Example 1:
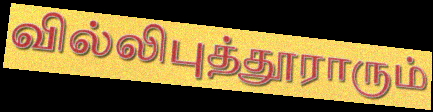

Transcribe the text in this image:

வில்லிபுத்தூராரும்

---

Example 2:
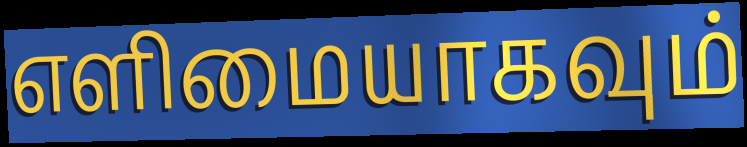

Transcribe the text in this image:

எளிமையாகவும்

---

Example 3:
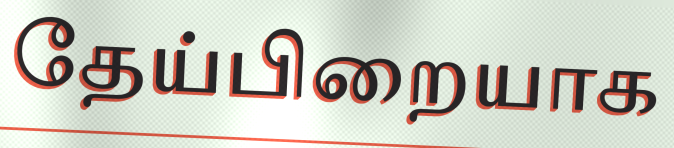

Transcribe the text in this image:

தேய்பிறையாக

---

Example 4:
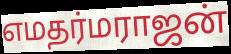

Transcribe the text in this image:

எமதர்மராஜன்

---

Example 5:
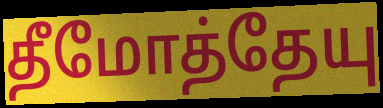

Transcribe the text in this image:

தீமோத்தேயு